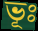
ভূঃ